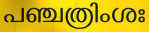
പഞ്ചത്രിംശഃ